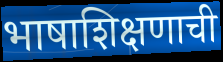
भाषाशिक्षणाची